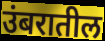
उंबरातील